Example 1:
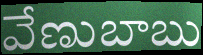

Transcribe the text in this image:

వేణుబాబు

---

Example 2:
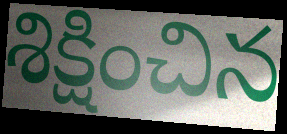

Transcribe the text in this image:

శిక్షించిన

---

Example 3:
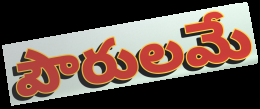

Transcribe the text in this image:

పౌరులమే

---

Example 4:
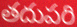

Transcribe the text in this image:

తదుపరి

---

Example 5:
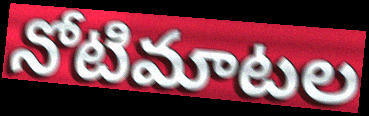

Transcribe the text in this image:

నోటిమాటల